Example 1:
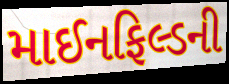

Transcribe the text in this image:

માઈનફિલ્ડની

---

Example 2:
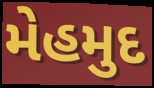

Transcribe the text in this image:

મેહમુદ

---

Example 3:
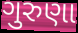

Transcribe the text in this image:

ગુરુણા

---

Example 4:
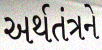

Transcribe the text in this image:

અર્થતંત્રને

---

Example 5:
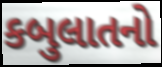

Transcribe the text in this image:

કબુલાતનો